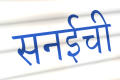
सनईची